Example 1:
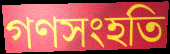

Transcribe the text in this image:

গণসংহতি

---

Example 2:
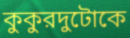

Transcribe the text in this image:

কুকুরদুটোকে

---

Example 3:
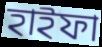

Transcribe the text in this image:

হাইফা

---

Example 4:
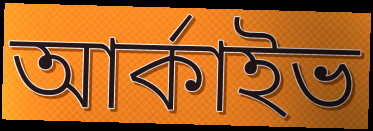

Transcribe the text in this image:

আর্কাইভ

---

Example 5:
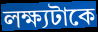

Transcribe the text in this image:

লক্ষ্যটাকে